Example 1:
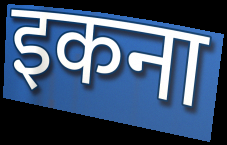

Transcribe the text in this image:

इकना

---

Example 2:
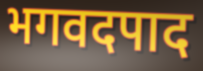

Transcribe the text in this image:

भगवदपाद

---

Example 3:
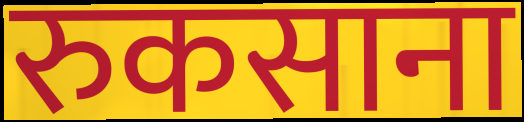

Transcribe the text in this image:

रुकसाना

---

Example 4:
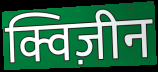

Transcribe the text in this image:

क्विज़ीन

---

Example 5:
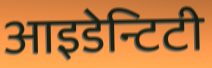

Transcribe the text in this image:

आइडेन्टिटी